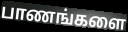
பாணங்களை